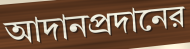
আদানপ্রদানের